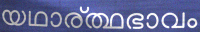
യഥാര്ത്ഥഭാവം